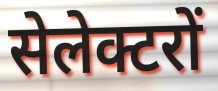
सेलेक्टरों